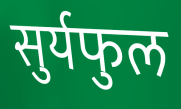
सुर्यफुल